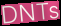
DNTs